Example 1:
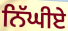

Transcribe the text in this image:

ਨਿੱਘੀਏ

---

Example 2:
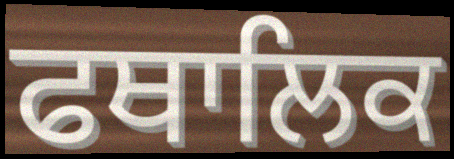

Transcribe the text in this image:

ਫਥਾਲਿਕ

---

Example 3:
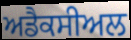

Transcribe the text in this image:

ਅਡੈਕਸੀਅਲ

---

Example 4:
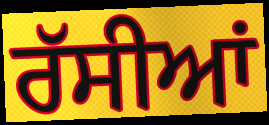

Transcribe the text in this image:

ਰੱਸੀਆਂ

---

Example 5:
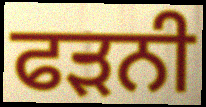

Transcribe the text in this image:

ਫੜਨੀ